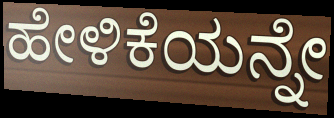
ಹೇಳಿಕೆಯನ್ನೇ